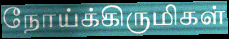
நோய்க்கிருமிகள்